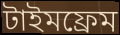
টাইমফ্রেম